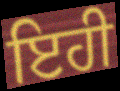
ਇਹੀ